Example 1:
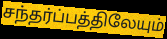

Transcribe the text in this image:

சந்தர்ப்பத்திலேயும்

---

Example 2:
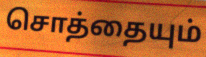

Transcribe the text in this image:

சொத்தையும்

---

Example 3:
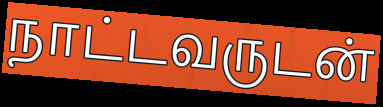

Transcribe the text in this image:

நாட்டவருடன்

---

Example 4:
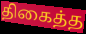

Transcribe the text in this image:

திகைத்த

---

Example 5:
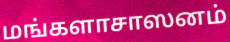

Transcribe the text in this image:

மங்களாசாஸனம்